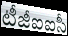
టీజీఐఐసీ